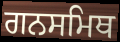
ਗਨਸਮਿਥ